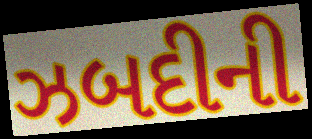
ઝબદીની